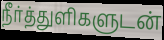
நீர்த்துளிகளுடன்